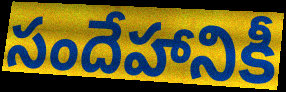
సందేహానికీ